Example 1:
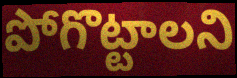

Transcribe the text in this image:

పోగొట్టాలని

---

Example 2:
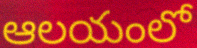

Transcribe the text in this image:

ఆలయంలో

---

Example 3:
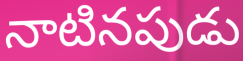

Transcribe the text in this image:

నాటినపుడు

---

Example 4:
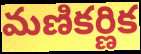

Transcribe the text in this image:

మణికర్ణిక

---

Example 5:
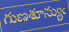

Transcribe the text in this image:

గుణశూన్యుఁ